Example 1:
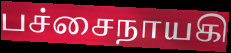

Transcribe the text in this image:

பச்சைநாயகி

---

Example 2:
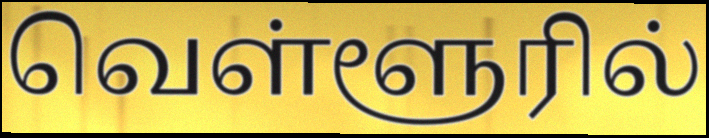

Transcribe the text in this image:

வெள்ளூரில்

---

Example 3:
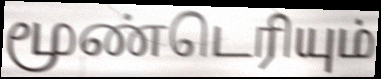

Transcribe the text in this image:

மூண்டெரியும்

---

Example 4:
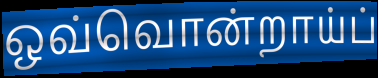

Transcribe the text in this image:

ஒவ்வொன்றாய்ப்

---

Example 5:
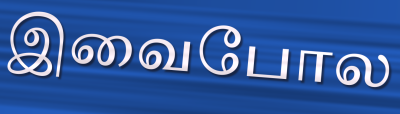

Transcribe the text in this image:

இவைபோல